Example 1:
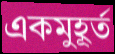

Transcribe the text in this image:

একমুহূর্ত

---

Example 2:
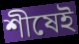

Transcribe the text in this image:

শীষেই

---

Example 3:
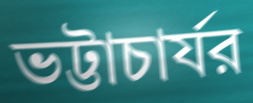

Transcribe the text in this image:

ভট্টাচার্যর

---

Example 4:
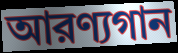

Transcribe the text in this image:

আরণ্যগান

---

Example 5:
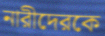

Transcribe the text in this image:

নারীদেরকে